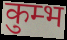
कुम्भ